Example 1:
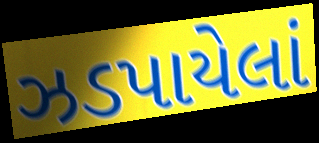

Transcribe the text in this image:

ઝડપાયેલાં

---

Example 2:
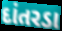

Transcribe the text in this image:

દાંતરડા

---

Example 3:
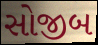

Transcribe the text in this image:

સોજીબ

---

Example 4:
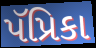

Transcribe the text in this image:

પૅપ્રિકા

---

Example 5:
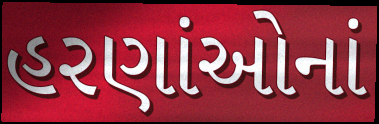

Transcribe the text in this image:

હરણાંઓનાં